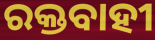
ରକ୍ତବାହୀ